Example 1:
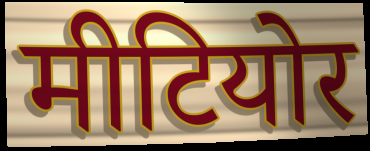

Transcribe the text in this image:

मीटियोर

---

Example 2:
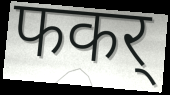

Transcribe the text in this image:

फकर्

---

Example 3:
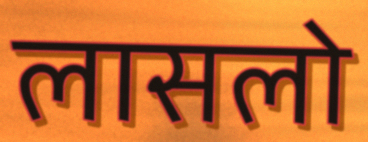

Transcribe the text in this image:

लासलो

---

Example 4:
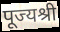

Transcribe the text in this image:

पूज्यश्री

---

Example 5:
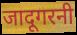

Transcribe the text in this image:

जादूगरनी